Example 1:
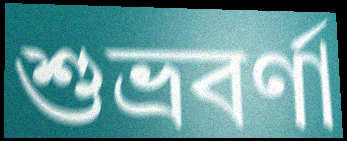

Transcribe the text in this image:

শুভ্রবর্ণা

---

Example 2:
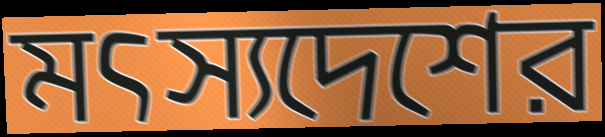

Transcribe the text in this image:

মৎস্যদেশের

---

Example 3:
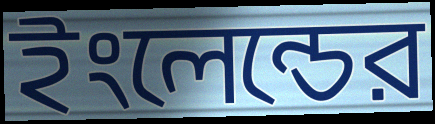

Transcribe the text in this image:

ইংলেন্ডের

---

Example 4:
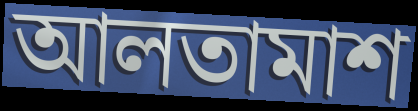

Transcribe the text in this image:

আলতামাশ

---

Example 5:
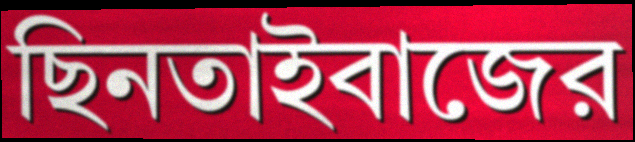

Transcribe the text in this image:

ছিনতাইবাজের